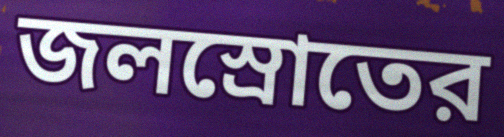
জলস্রোতের